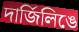
দার্জিলিঙে